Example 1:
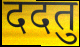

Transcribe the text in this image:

ददतु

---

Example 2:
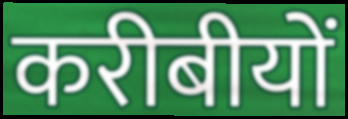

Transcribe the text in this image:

करीबीयों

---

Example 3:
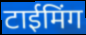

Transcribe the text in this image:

टाईमिंग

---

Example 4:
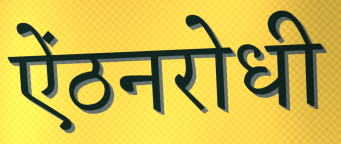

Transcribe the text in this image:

ऐंठनरोधी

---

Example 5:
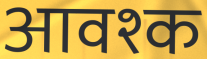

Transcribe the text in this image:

आवश्क